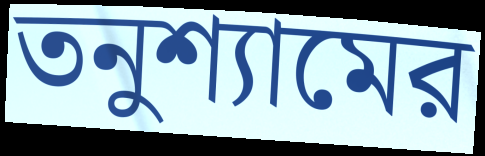
তনুশ্যামের